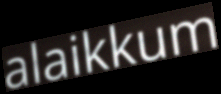
alaikkum